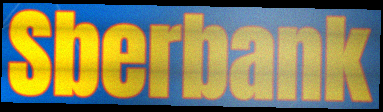
Sberbank